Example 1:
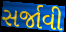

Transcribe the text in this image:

સર્જાવી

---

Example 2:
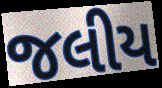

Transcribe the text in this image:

જલીય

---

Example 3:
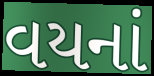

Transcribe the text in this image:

વયનાં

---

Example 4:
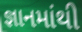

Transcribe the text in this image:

જ્ઞાનમાંથી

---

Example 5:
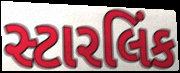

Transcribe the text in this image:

સ્ટારલિંક